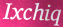
Ixchiq